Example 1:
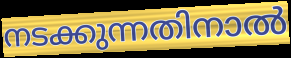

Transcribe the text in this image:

നടക്കുന്നതിനാൽ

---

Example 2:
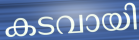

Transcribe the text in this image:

കടവായി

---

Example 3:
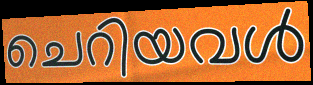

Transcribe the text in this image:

ചെറിയവൾ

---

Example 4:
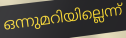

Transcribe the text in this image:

ഒന്നുമറിയില്ലെന്ന്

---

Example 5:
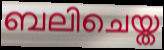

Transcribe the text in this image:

ബലിചെയ്ത